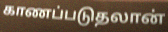
காணப்படுதலான்